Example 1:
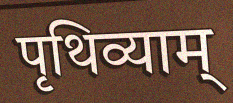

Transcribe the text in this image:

पृथिव्याम्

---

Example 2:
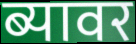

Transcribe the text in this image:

ब्यावर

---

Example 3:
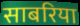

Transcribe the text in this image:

साबरिया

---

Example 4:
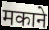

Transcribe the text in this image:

मकाने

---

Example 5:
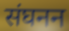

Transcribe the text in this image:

संघनन